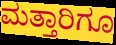
ಮತ್ತಾರಿಗೂ